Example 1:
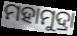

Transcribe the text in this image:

ମହାମୁଦ୍ରା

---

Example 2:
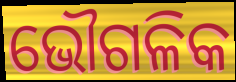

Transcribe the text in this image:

ଭୌଗଳିକ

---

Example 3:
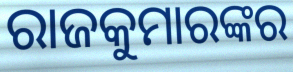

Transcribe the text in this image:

ରାଜକୁମାରଙ୍କର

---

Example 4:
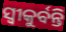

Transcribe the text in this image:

ସ୍ଵୀକୁର୍ବନ୍ତି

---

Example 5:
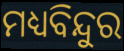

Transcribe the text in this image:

ମଧ୍ୟବିନ୍ଦୁର